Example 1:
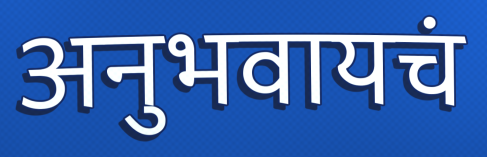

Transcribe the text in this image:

अनुभवायचं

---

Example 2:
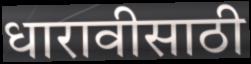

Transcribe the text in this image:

धारावीसाठी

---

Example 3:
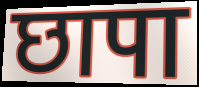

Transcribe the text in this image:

छापा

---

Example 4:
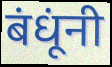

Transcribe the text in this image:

बंधूंनी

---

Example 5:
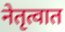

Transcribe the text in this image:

नेतृत्वात